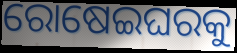
ରୋଷେଇଘରକୁ